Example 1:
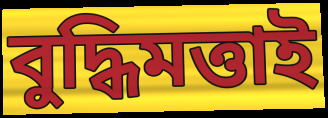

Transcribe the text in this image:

বুদ্ধিমত্তাই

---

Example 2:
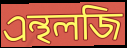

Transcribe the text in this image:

এন্থলজি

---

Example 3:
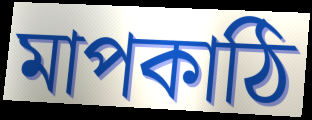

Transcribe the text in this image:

মাপকাঠি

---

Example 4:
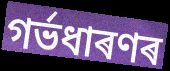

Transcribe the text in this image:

গৰ্ভধাৰণৰ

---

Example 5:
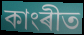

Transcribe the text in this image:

কাংৰীত